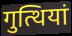
गुत्थियां